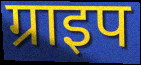
ग्राइप